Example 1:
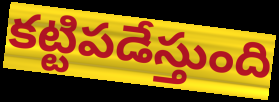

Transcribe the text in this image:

కట్టిపడేస్తుంది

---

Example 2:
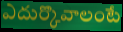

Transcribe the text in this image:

ఎదుర్కొవాలంటే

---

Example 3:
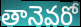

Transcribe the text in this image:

తానెవరో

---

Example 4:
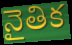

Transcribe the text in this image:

నైతిక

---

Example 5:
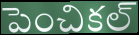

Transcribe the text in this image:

పెంచికల్